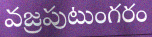
వజ్రపుటుంగరం